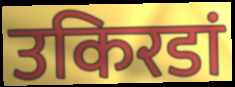
उकिरडां